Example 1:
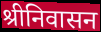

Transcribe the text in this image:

श्रीनिवासन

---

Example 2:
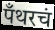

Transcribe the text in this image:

पँथरचं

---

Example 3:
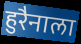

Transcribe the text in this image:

हुरैनाला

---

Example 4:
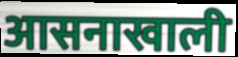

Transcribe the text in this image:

आसनाखाली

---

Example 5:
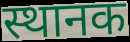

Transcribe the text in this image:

स्थानक